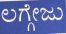
ಲಗ್ಗೇಜು